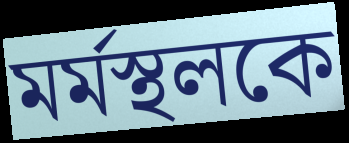
মর্মস্থলকে